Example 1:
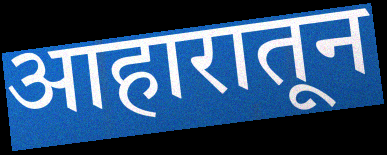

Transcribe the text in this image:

आहारातून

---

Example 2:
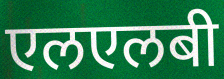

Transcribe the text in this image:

एलएलबी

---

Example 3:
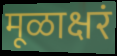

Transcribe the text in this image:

मूळाक्षरं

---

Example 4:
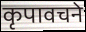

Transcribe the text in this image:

कृपावचने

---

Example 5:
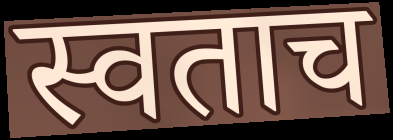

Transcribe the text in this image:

स्वताच